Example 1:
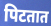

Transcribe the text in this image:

पिटतात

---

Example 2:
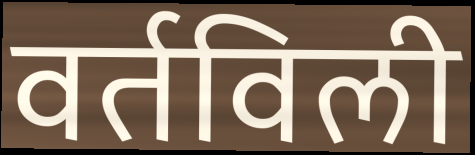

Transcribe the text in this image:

वर्तविली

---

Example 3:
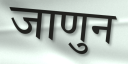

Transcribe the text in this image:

जाणुन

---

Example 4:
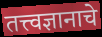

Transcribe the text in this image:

तत्त्वज्ञानाचे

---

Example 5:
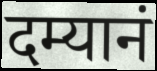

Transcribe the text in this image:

दम्यानं